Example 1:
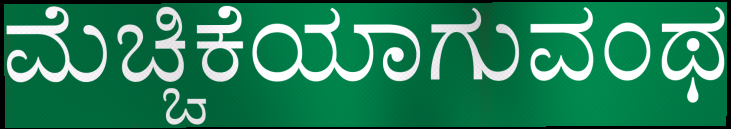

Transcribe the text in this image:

ಮೆಚ್ಚಿಕೆಯಾಗುವಂಥ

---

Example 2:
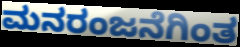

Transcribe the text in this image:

ಮನರಂಜನೆಗಿಂತ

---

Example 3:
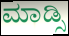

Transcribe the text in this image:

ಮಾಡ್ಸಿ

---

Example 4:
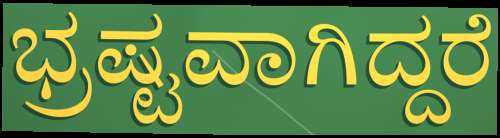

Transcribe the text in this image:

ಭ್ರಷ್ಟವಾಗಿದ್ದರೆ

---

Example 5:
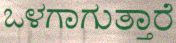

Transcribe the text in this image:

ಒಳಗಾಗುತ್ತಾರೆ